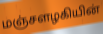
மஞ்சளழகியின்